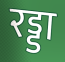
रड्डा